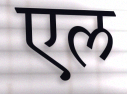
एल